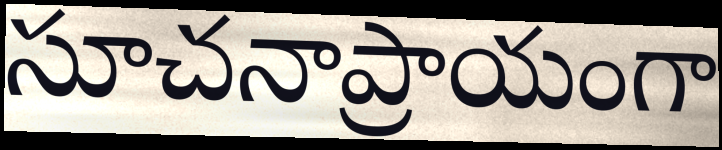
సూచనాప్రాయంగా